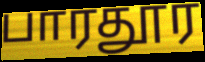
பாரதூர